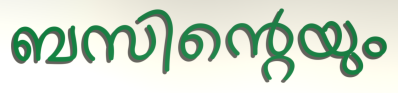
ബസിന്റെയും